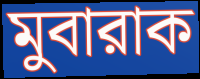
মুবারাক